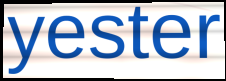
yester